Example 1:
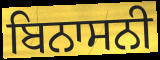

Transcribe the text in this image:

ਬਿਨਾਸਨੀ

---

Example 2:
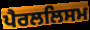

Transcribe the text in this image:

ਪੈਰਲਲਿਸਮ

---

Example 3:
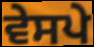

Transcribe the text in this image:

ਵੇਸਪੇ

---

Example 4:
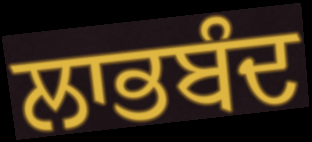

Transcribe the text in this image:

ਲਾਭਬੰਦ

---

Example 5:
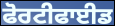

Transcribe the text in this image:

ਫੋਰਟੀਫਾਈਡ